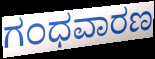
ಗಂಧವಾರಣ